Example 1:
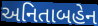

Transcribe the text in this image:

અનિતાબહેન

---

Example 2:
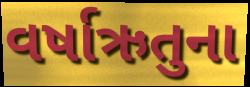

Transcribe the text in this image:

વર્ષાઋતુના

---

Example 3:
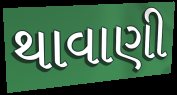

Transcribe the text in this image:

થાવાણી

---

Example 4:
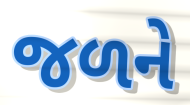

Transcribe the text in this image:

જળને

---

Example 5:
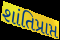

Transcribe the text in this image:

શાંતિપ્રાપ્ત